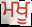
ਮਖੂ